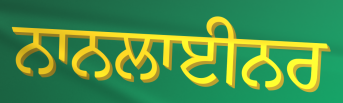
ਨਾਨਲਾਈਨਰ